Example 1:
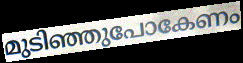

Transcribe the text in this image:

മുടിഞ്ഞുപോകേണം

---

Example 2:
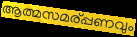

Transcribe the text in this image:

ആത്മസമര്പ്പണവും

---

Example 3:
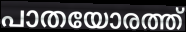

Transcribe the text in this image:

പാതയോരത്ത്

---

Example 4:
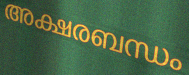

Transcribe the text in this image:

അക്ഷരബന്ധം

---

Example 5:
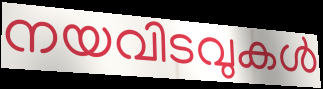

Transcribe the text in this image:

നയവിടവുകൾ